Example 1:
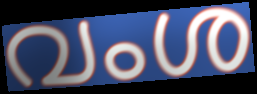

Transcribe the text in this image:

വംശ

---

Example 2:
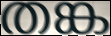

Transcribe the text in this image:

തങ്ക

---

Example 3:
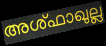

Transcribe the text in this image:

അശ്ഫാഖുല്ല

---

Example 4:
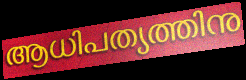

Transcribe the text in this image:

ആധിപത്യത്തിനു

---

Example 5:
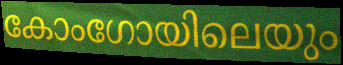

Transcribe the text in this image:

കോംഗോയിലെയും